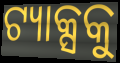
ଟ୍ୟାକ୍ସକୁ